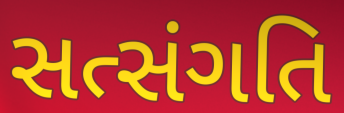
સત્સંગતિ